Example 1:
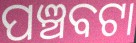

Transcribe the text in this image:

ପଞ୍ଚବଟା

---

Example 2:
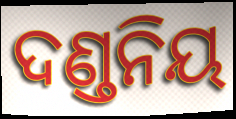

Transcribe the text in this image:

ଦଣ୍ଡନିୟ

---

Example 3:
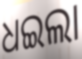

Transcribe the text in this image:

ଧଇଲା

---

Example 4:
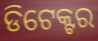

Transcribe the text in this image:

ଡିଟେକ୍ଟର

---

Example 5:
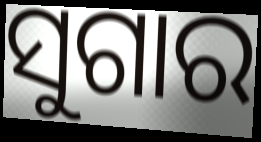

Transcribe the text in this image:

ସୁଗାର